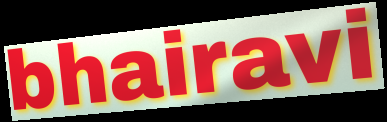
bhairavi